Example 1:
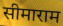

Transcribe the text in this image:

सीमाराम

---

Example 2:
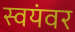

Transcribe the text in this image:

स्वयंवर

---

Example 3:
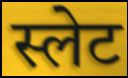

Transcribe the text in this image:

स्लेट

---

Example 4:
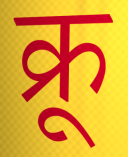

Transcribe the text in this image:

क्रू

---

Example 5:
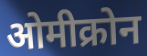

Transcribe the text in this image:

ओमीक्रोन